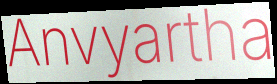
Anvyartha